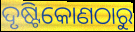
ଦୃଷ୍ଟିକୋଣଠାରୁ